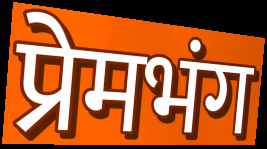
प्रेमभंग